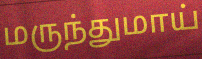
மருந்துமாய்